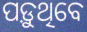
ପଡ଼ୁଥିବେ